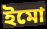
ইমো